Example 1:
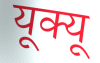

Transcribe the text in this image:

यूक्यू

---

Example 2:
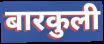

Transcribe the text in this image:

बारकुली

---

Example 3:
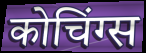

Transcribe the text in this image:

कोचिंग्स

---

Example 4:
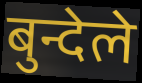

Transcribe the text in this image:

बुन्देले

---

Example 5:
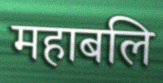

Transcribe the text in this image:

महाबलि